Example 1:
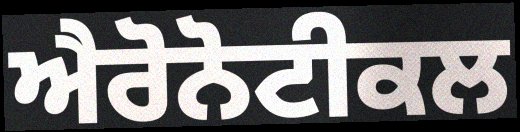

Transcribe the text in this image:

ਐਰੋਨੋਟੀਕਲ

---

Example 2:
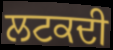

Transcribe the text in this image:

ਲਟਕਦੀ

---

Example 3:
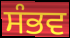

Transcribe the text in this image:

ਸੰਭਵ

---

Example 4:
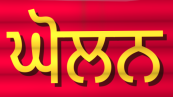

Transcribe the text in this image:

ਘੋਲਨ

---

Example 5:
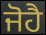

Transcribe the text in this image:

ਜੋਹੈ